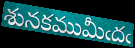
శునకముమీఁదఁ